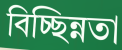
বিচ্ছিন্নতা